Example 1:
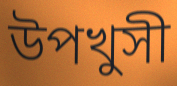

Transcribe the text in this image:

উপখুসী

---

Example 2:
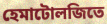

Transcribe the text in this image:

হেমাটোলজিতে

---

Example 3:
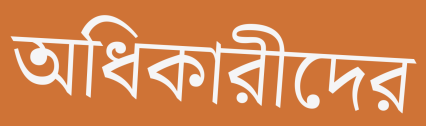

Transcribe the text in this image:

অধিকারীদের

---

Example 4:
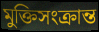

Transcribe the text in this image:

মুক্তিসংক্রান্ত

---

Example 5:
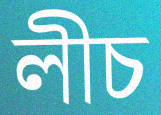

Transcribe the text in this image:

লীচ